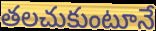
తలచుకుంటూనే